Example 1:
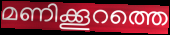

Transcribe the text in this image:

മണിക്കൂറത്തെ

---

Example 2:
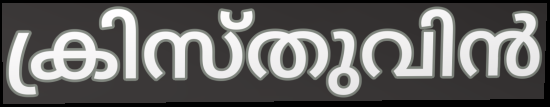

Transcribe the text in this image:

ക്രിസ്തുവിൻ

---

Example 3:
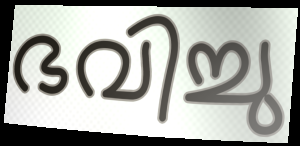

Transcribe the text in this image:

ഭവിച്ചു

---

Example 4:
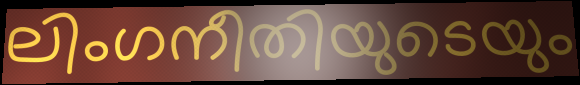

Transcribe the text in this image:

ലിംഗനീതിയുടെയും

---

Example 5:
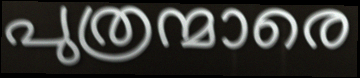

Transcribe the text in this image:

പുത്രന്മാരെ